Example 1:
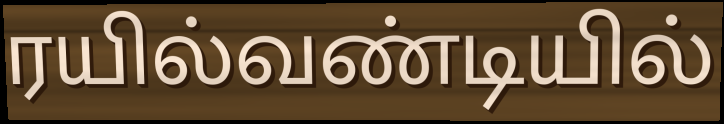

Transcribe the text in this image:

ரயில்வண்டியில்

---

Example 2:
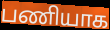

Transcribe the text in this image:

பணியாக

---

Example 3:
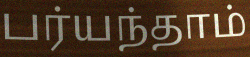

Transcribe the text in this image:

பர்யந்தாம்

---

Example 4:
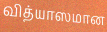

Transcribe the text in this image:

வித்யாஸமான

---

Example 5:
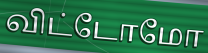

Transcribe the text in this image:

விட்டோமோ